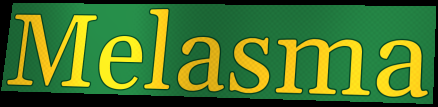
Melasma